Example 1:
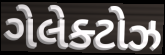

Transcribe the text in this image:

ગેલેક્ટોઝ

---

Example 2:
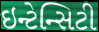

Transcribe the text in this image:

ઇન્ટેન્સિટી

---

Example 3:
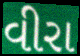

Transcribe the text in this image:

વીરા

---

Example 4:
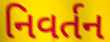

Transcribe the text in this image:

નિવર્તન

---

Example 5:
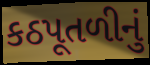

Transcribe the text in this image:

કઠપૂતળીનું